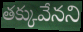
తక్కువేనని